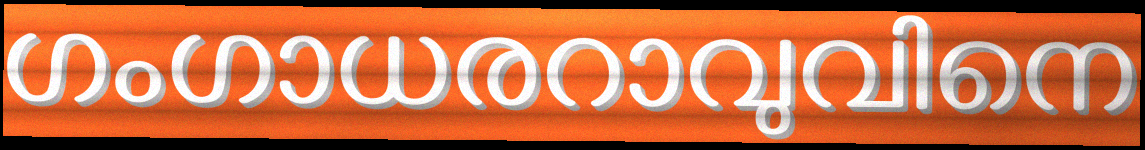
ഗംഗാധരറാവുവിനെ